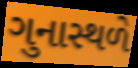
ગુનાસ્થળે